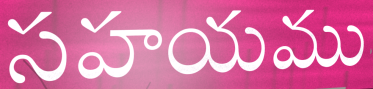
సహయము